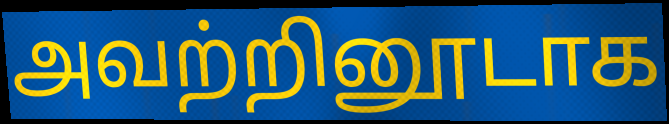
அவற்றினூடாக